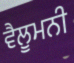
ਵੈਲੂਮਨੀ